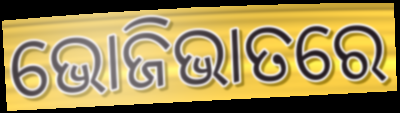
ଭୋଜିଭାତରେ